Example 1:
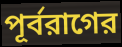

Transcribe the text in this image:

পূর্বরাগের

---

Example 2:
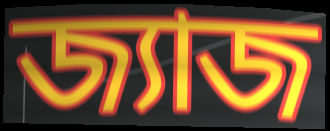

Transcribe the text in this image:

জ্যাজ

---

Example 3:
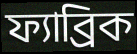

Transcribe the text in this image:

ফ্যাব্রিক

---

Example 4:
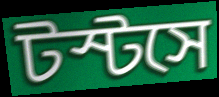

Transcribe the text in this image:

টস্টসে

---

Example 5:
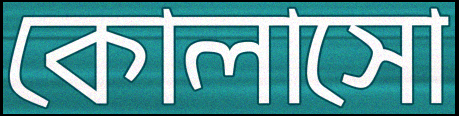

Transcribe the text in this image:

কোলাসো